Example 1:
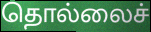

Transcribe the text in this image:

தொல்லைச்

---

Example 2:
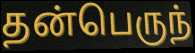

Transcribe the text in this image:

தன்பெருந்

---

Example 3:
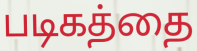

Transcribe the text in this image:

படிகத்தை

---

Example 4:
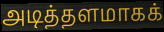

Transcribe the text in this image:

அடித்தளமாகக்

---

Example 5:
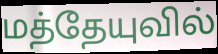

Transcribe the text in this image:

மத்தேயுவில்